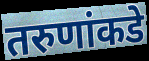
तरुणांकडे